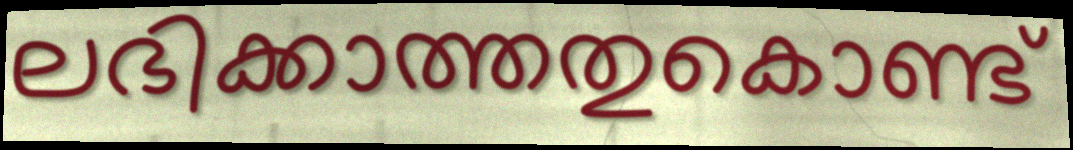
ലഭിക്കാത്തതുകൊണ്ട്